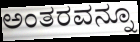
ಅಂತರವನ್ನೂ